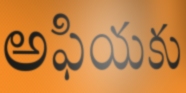
అఫియకు